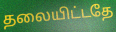
தலையிட்டதே